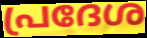
പ്രദേശ